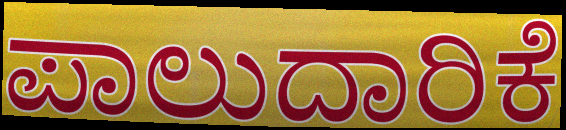
ಪಾಲುದಾರಿಕೆ